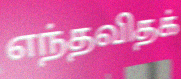
எந்தவிதக்